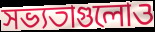
সভ্যতাগুলোও